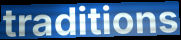
traditions